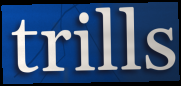
trills